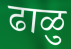
ढाळु